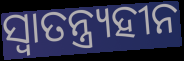
ସ୍ଵାତନ୍ତ୍ର୍ୟହୀନ